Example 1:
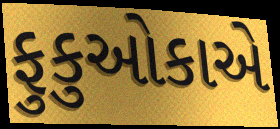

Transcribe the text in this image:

ફુકુઓકાએ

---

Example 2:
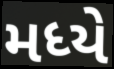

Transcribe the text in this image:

મધ્યે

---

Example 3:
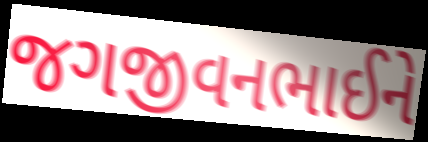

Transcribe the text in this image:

જગજીવનભાઈને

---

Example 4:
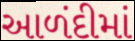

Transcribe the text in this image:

આળંદીમાં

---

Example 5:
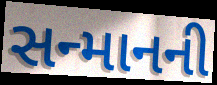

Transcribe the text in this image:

સન્માનની